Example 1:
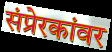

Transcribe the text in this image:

संप्रेरकांवर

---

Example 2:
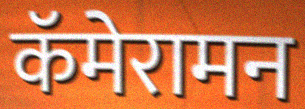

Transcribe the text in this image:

कॅमेरामन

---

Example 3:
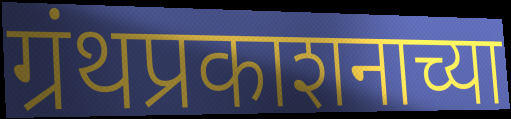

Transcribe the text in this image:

ग्रंथप्रकाशनाच्या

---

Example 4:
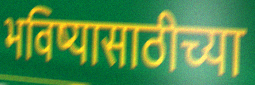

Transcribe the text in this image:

भविष्यासाठीच्या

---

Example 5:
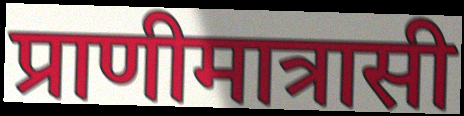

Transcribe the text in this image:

प्राणीमात्रासी